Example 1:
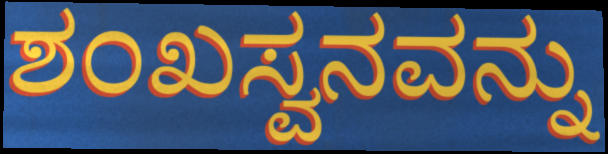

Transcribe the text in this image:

ಶಂಖಸ್ವನವನ್ನು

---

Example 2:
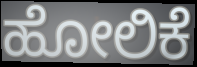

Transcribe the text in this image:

ಹೋಲಿಕೆ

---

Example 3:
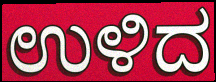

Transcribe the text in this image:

ಉಳಿದ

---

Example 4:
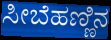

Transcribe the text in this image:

ಸೀಬೆಹಣ್ಣಿನ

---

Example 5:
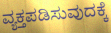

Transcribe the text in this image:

ವ್ಯಕ್ತಪಡಿಸುವುದಕ್ಕೆ